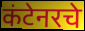
कंटेनरचे